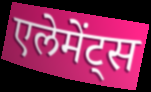
एलेमेंट्स